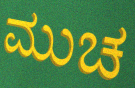
ಮುಚ